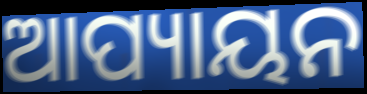
ଆପ୍ୟାୟନ